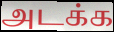
அடக்க